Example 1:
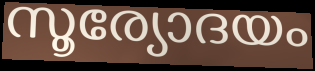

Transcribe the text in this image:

സൂര്യോദയം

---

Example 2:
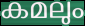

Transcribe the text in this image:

കമലും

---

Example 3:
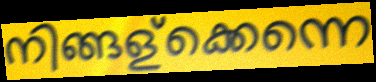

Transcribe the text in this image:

നിങ്ങള്ക്കെന്നെ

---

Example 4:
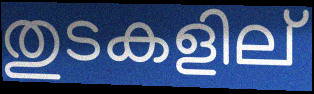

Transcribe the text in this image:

തുടകളില്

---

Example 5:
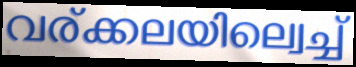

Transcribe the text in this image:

വര്ക്കലയില്വെച്ച്